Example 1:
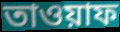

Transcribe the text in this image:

তাওয়াফ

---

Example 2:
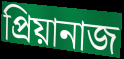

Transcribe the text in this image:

প্রিয়ানাজ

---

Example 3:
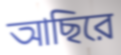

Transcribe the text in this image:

আছিরে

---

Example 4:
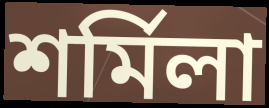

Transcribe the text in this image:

শর্মিলা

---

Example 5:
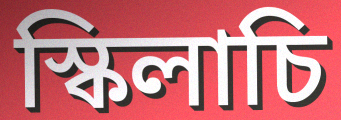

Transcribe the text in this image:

স্কিলাচি